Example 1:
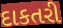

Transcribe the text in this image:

દાકતરી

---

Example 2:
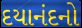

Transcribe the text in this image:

દયાનંદનો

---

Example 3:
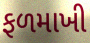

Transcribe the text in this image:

ફળમાખી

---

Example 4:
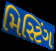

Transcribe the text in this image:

મિસ્ટિંગ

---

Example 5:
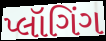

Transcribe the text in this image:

પ્લૉગિંગ